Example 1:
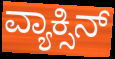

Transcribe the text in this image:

ವ್ಯಾಕ್ಸಿನ್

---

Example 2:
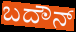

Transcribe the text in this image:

ಬದೌನ್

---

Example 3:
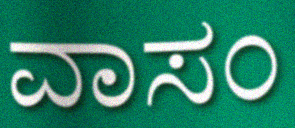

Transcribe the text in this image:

ವಾಸಂ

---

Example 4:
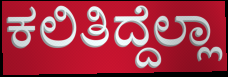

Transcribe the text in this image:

ಕಲಿತಿದ್ದೆಲ್ಲಾ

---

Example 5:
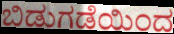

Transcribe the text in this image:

ಬಿಡುಗಡೆಯಿಂದ